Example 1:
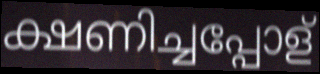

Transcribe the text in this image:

ക്ഷണിച്ചപ്പോള്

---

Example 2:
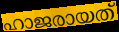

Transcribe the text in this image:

ഹാജരായത്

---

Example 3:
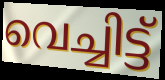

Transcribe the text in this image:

വെച്ചിട്ട്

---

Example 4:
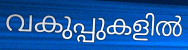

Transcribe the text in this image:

വകുപ്പുകളിൽ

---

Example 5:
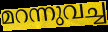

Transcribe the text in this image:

മറന്നുവച്ച